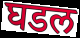
घडल